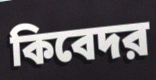
কিবেদর